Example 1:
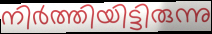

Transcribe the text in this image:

നിർത്തിയിട്ടിരുന്നു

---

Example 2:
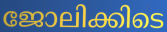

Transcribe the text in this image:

ജോലിക്കിടെ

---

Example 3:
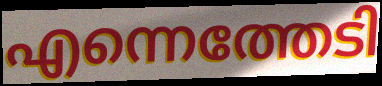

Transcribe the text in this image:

എന്നെത്തേടി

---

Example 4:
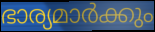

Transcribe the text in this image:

ഭാര്യമാർക്കും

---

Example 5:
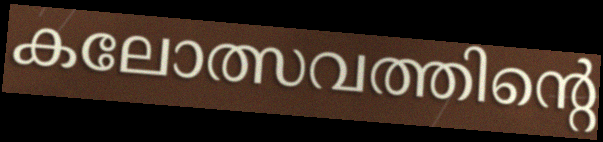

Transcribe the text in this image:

കലോത്സവത്തിന്റെ